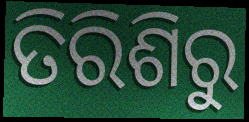
ତିରିଶିରୁ